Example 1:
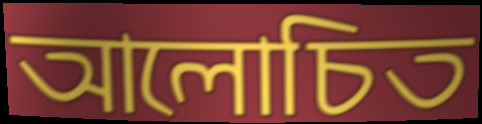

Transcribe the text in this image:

আলোচিত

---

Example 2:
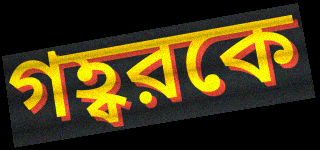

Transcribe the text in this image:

গহ্বরকে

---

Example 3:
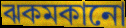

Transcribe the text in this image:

ঝকমকানো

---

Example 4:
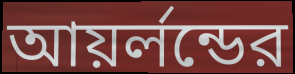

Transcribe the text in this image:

আয়র্লন্ডের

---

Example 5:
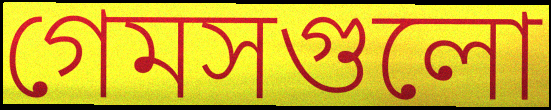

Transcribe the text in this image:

গেমসগুলো